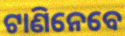
ଟାଣିନେବେ